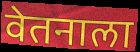
वेतनाला